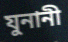
যুনানী